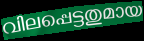
വിലപ്പെട്ടതുമായ